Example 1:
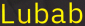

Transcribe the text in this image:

Lubab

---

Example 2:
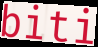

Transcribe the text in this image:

biti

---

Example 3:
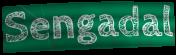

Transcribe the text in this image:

Sengadal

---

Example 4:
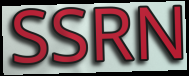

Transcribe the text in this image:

SSRN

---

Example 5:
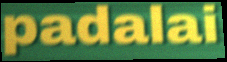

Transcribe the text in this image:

padalai